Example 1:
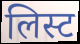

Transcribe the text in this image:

लिस्ट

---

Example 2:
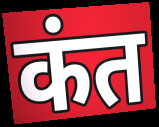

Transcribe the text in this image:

कंत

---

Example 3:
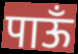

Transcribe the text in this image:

पाऊँ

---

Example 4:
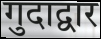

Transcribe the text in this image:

गुदाद्वार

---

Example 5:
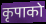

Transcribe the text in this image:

कृपाको